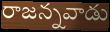
రాజన్నవాడు